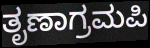
ತೃಣಾಗ್ರಮಪಿ